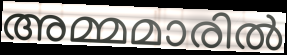
അമ്മമാരിൽ